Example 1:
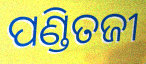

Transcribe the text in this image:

ପଣ୍ଡିତଜୀ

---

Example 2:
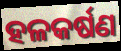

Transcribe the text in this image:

ହଳକର୍ଷଣ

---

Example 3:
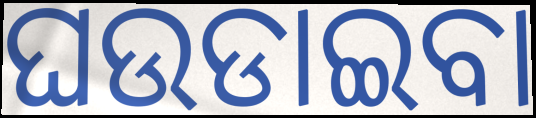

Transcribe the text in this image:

ଘଉଡାଇବା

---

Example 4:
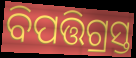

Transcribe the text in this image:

ବିପତ୍ତିଗ୍ରସ୍ତ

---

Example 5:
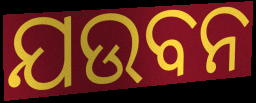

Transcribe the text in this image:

ଯଉବନ